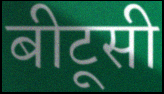
बीटूसी